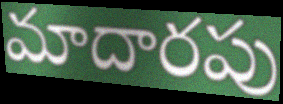
మాదారపు